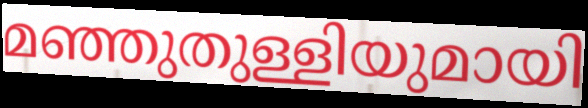
മഞ്ഞുതുള്ളിയുമായി